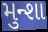
મુન્શા